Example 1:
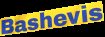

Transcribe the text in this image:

Bashevis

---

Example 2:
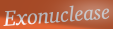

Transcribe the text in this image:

Exonuclease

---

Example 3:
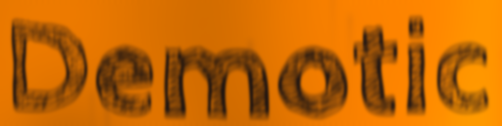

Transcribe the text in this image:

Demotic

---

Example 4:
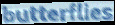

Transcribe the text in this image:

butterflies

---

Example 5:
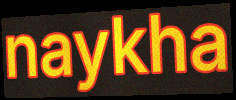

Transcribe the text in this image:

naykha